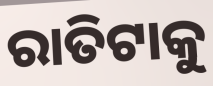
ରାତିଟାକୁ